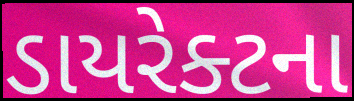
ડાયરેક્ટના